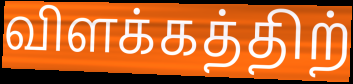
விளக்கத்திற்